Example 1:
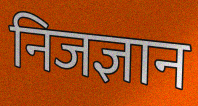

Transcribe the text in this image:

निजज्ञान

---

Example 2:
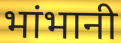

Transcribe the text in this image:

भांभानी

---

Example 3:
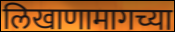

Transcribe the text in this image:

लिखाणामागच्या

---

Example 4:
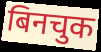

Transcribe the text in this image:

बिनचुक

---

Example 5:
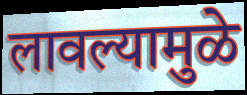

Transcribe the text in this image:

लावल्यामुळे